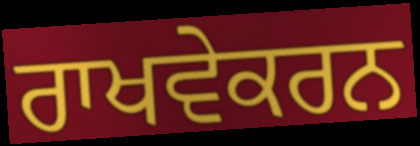
ਰਾਖਵੇਕਰਨ